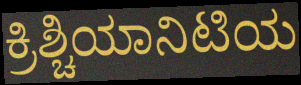
ಕ್ರಿಶ್ಚಿಯಾನಿಟಿಯ